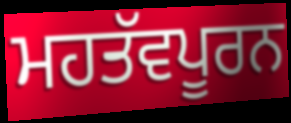
ਮਹਤੱਵਪੂਰਨ